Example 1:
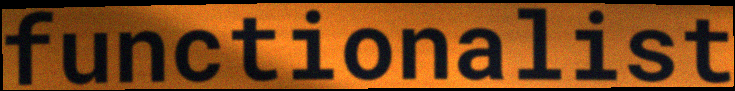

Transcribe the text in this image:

functionalist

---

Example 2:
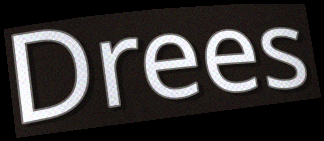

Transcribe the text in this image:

Drees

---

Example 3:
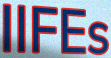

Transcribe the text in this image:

IIFEs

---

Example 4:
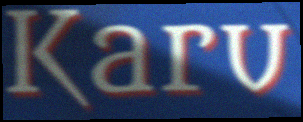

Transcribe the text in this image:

Karu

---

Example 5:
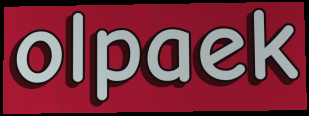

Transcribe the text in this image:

olpaek